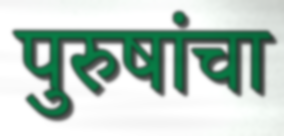
पुरुषांचा